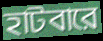
হাটবারে